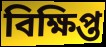
বিক্ষিপ্ত